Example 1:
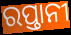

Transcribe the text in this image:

ରପ୍ତାନୀ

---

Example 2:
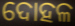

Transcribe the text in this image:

ଦୋହଳ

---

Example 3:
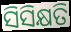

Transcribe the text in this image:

ସିସିକ୍ଷତି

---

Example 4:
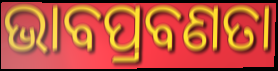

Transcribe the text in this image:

ଭାବପ୍ରବଣତା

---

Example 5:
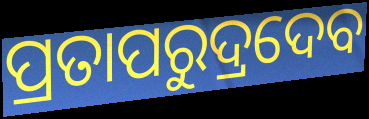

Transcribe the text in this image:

ପ୍ରତାପରୁଦ୍ରଦେବ